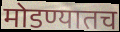
मोडण्यातच